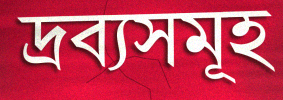
দ্ৰব্যসমূহ